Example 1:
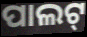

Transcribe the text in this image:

ପାଲଟ୍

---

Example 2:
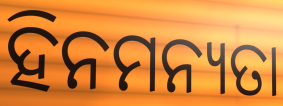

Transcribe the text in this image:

ହିନମନ୍ୟତା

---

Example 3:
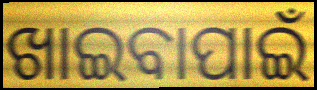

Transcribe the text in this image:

ଖାଇବାପାଇଁ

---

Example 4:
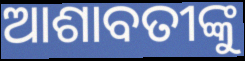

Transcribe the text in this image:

ଆଶାବତୀଙ୍କୁ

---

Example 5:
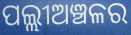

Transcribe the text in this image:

ପଲ୍ଲୀଅଞ୍ଚଳର